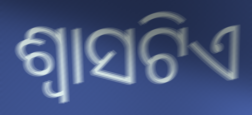
ଶ୍ଵାସଟିଏ